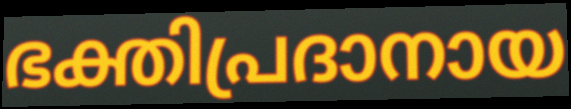
ഭക്തിപ്രദാനായ